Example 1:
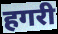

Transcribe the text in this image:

हगरी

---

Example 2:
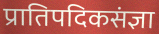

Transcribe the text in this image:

प्रातिपदिकसंज्ञा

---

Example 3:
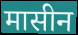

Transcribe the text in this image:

मासीन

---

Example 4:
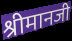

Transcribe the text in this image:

श्रीमानजी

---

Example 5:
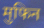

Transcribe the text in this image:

मुफिन